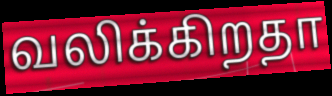
வலிக்கிறதா